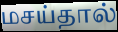
மசய்தால்